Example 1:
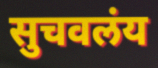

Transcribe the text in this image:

सुचवलंय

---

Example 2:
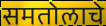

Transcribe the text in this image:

समतोलाचे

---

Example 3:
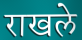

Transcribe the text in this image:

राखले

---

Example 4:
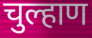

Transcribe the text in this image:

चुल्हाण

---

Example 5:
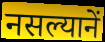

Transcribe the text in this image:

नसल्यानें